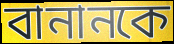
বানানকে